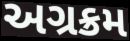
અગ્રક્રમ